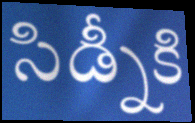
సిడ్నీకి